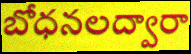
బోధనలద్వారా